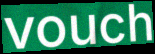
vouch